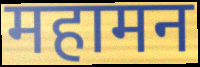
महामन